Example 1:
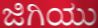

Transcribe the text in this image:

ಜಿಗಿಯು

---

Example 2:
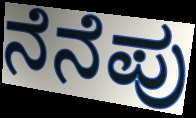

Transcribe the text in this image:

ನೆನೆಪು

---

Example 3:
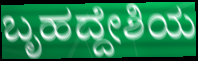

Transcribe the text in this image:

ಬೃಹದ್ದೇಶಿಯ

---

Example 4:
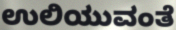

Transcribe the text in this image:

ಉಲಿಯುವಂತೆ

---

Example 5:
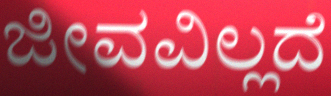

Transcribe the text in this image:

ಜೀವವಿಲ್ಲದೆ